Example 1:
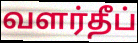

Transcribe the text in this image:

வளர்தீப்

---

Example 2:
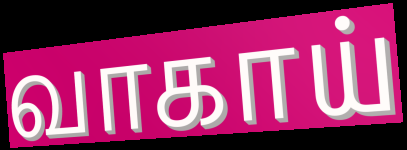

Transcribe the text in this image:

வாகாய்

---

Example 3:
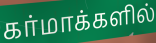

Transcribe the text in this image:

கர்மாக்களில்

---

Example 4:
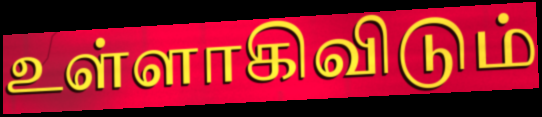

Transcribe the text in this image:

உள்ளாகிவிடும்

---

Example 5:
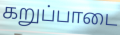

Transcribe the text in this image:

கறுப்பாடை